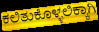
ಕಲಿತುಕೊಳ್ಳಲಿಕ್ಕಾಗಿ